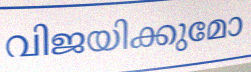
വിജയിക്കുമോ